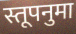
स्तूपनुमा